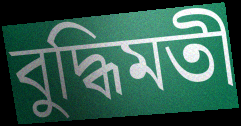
বুদ্ধিমতী